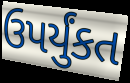
ઉપર્યુંકત